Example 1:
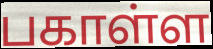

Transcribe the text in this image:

பகாள்ள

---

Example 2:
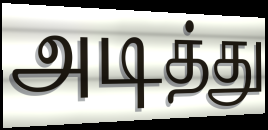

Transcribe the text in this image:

அடித்து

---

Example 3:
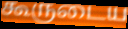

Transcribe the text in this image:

கூருடைய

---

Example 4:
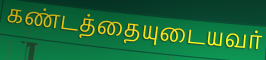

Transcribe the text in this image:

கண்டத்தையுடையவர்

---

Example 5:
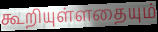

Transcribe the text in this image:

கூறியுள்ளதையும்